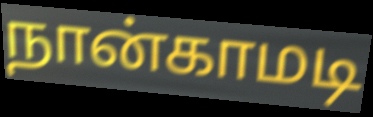
நான்காமடி